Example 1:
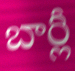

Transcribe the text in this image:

బార్లీ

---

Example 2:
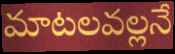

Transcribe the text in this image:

మాటలవల్లనే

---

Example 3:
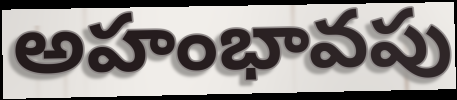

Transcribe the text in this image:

అహంభావపు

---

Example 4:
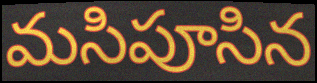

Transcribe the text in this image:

మసిపూసిన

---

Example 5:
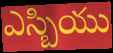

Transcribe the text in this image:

ఎస్బియు